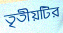
তৃতীয়টির